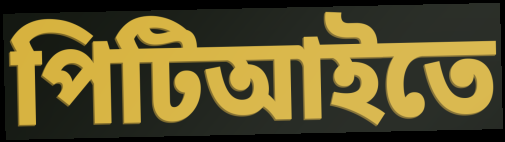
পিটিআইতে